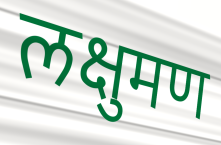
लक्षुमण